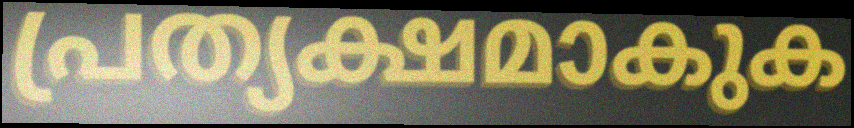
പ്രത്യക്ഷമാകുക